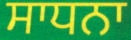
ਸਾਧਨਾ